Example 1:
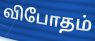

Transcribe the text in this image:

விபோதம்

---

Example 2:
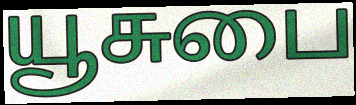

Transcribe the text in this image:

யூசுபை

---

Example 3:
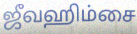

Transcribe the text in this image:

ஜீவஹிம்சை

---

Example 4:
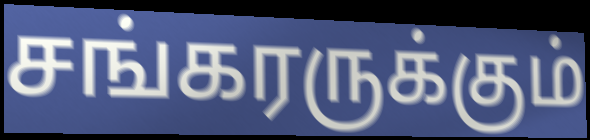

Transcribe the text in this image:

சங்கரருக்கும்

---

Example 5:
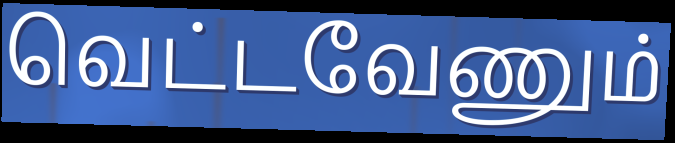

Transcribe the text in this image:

வெட்டவேணும்